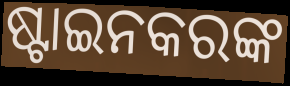
ଷ୍ଟାଇନକରଙ୍କ